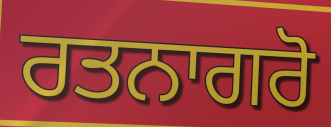
ਰਤਨਾਗਰੋ